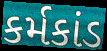
કર્મકાંડ